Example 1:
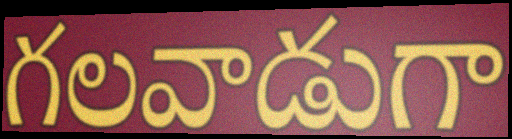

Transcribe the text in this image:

గలవాడుగా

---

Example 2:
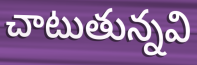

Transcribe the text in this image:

చాటుతున్నవి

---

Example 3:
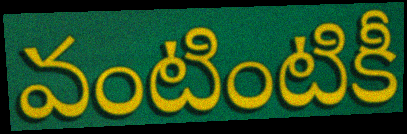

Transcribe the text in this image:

వంటింటికీ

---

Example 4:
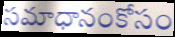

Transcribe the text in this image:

సమాధానంకోసం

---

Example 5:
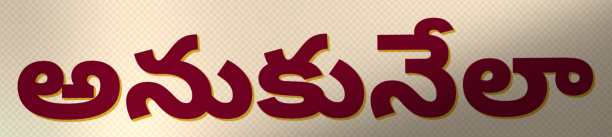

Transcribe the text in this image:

అనుకునేలా